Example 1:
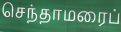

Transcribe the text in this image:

செந்தாமரைப்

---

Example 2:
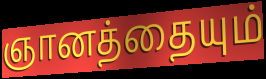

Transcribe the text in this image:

ஞானத்தையும்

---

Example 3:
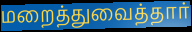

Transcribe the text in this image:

மறைத்துவைத்தார்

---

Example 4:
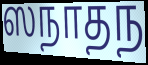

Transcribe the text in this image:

ஸநாதந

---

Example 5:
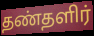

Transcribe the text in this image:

தண்தளிர்